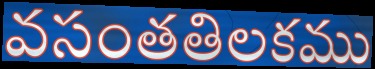
వసంతతిలకము